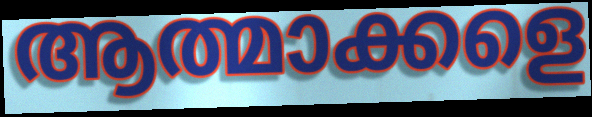
ആത്മാക്കളെ